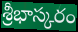
శ్రీభాస్కరం